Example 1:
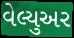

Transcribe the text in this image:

વેલ્યુઅર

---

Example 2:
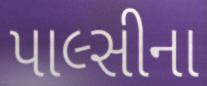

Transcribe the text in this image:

પાલ્સીના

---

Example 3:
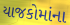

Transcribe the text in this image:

યાજકોમાંના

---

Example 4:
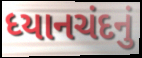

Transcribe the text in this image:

ધ્યાનચંદનું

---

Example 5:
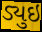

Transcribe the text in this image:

ડ્યુઇ